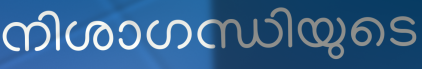
നിശാഗന്ധിയുടെ